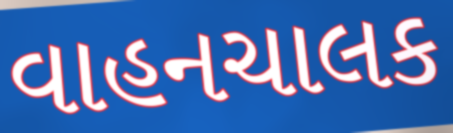
વાહનચાલક